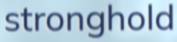
stronghold